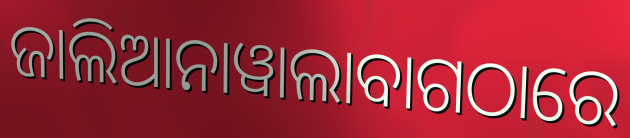
ଜାଲିଆନାୱାଲାବାଗଠାରେ